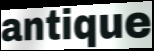
antique